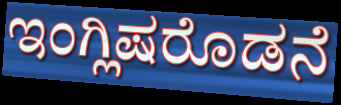
ಇಂಗ್ಲಿಷರೊಡನೆ